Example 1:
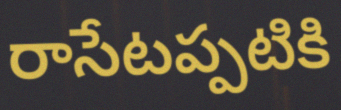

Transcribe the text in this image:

రాసేటప్పటికి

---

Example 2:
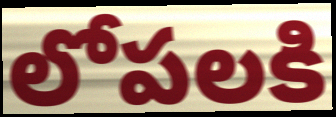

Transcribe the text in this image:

లోపలకి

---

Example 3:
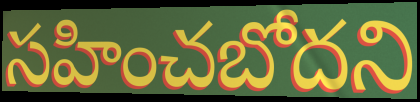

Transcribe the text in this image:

సహించబోదని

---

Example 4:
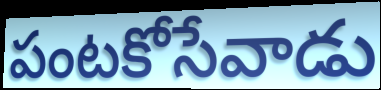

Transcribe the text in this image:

పంటకోసేవాడు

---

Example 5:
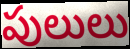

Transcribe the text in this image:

పులులు